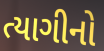
ત્યાગીનો